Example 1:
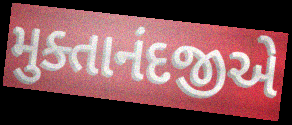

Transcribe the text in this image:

મુક્તાનંદજીએ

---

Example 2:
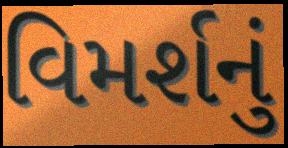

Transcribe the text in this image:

વિમર્શનું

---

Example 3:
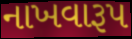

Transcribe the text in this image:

નાખવારૂપ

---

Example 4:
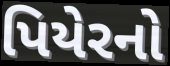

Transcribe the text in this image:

પિયેરનો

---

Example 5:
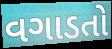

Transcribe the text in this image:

વગાડતો